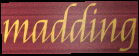
madding